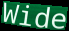
Wide